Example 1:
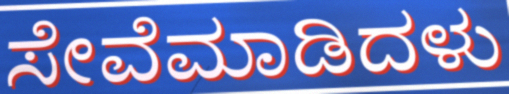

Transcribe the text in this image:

ಸೇವೆಮಾಡಿದಳು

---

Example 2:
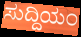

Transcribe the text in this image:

ಸುದ್ದಿಯಂ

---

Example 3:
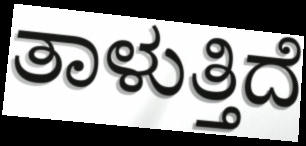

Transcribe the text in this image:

ತಾಳುತ್ತಿದೆ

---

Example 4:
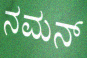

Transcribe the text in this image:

ನಮನ್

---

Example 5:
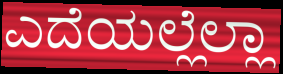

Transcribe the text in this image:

ಎದೆಯಲ್ಲೆಲ್ಲಾ